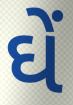
ઘેં